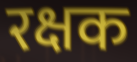
रक्षक